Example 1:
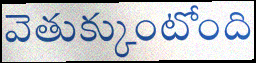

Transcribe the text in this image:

వెతుక్కుంటోంది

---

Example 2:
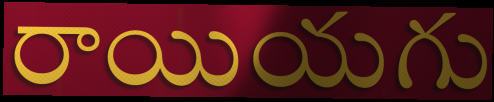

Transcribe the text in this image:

రాయియగు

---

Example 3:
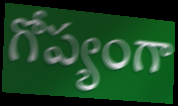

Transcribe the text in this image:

గోప్యంగా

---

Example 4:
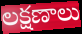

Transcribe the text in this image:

లక్షణాలు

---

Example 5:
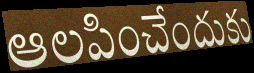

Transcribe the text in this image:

ఆలపించేందుకు